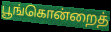
பூங்கொன்றைத்